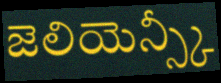
జెలియెన్స్కీ